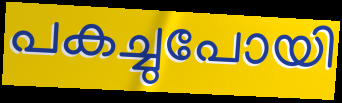
പകച്ചുപോയി